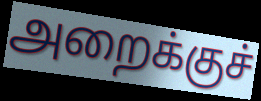
அறைக்குச்